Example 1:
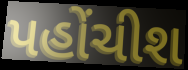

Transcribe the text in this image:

પહોંચીશ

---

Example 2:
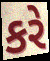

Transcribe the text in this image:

કરે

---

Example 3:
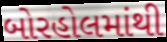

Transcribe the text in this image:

બોરહોલમાંથી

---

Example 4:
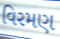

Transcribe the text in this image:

વિરમણ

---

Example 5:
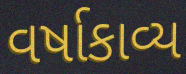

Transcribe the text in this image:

વર્ષાકાવ્ય